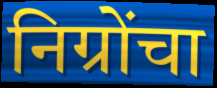
निग्रोंचा